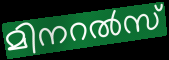
മിനറൽസ്